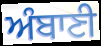
ਅੰਬਾਣੀ